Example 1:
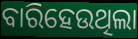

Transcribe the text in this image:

ବାରିହେଉଥିଲା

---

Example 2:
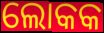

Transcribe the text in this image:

ଲୋକକ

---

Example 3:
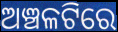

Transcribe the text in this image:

ଅଞ୍ଚଳଟିରେ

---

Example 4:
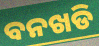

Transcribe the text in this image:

ବନଖଡି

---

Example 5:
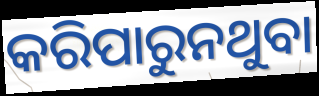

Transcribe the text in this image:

କରିପାରୁନଥୁବା